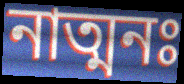
নাত্মনঃ